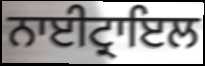
ਨਾਈਟ੍ਰਾਇਲ